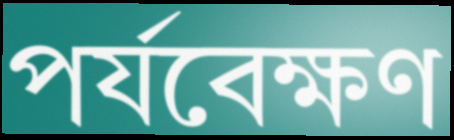
পর্যবেক্ষণ